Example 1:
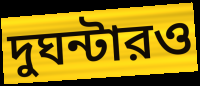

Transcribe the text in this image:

দুঘন্টারও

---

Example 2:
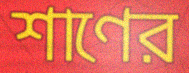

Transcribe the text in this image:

শাণের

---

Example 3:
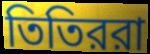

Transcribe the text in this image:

তিতিররা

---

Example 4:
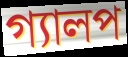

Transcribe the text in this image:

গ্যালপ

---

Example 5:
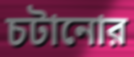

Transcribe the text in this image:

চটানোর